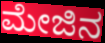
ಮೇಜಿನ